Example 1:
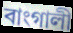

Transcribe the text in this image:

বাংগালী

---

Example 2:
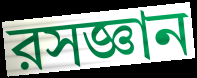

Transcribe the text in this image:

রসজ্ঞান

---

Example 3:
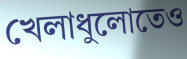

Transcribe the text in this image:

খেলাধুলোতেও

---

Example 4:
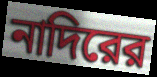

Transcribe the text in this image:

নাদিরের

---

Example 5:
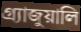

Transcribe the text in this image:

গ্র্যাজুয়ালি